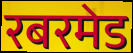
रबरमेड